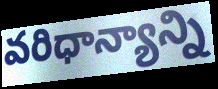
వరిధాన్యాన్ని